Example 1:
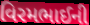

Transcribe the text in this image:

વિરમભાઈની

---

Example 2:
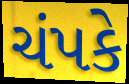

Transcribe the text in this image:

ચંપકે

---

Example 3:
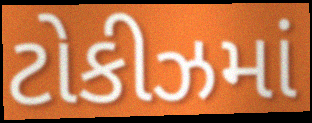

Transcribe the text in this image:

ટોકીઝમાં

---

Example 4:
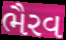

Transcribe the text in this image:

ભૈરવ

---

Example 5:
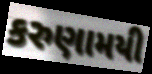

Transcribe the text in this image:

કરુણામયી